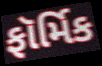
ફૉર્મિક